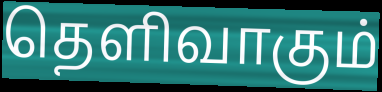
தெளிவாகும்